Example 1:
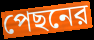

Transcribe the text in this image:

পেছনের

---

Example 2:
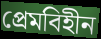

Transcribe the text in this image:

প্রেমবিহীন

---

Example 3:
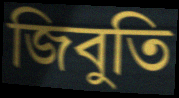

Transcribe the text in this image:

জিবুতি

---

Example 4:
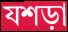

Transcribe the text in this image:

যশড়া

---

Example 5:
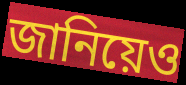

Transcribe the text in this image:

জানিয়েও